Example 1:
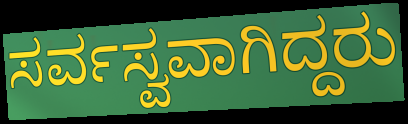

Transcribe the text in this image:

ಸರ್ವಸ್ವವಾಗಿದ್ದರು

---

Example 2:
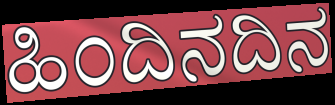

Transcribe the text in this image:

ಹಿಂದಿನದಿನ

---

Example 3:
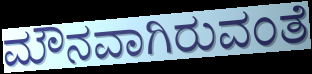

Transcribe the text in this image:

ಮೌನವಾಗಿರುವಂತೆ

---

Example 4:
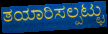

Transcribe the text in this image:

ತಯಾರಿಸಲ್ಪಟ್ಟು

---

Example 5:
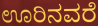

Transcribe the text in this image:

ಊರಿನವರೆ